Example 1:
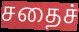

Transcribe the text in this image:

சதைச்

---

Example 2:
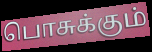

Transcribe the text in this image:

பொசுக்கும்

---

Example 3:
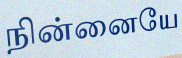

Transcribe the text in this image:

நின்னையே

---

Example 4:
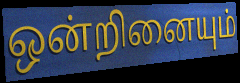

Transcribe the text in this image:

ஒன்றினையும்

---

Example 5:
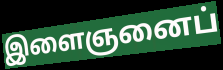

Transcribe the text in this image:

இளைஞனைப்